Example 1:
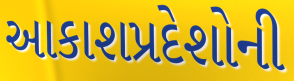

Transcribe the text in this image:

આકાશપ્રદેશોની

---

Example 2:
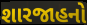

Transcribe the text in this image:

શારજાહનો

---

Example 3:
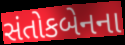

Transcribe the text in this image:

સંતોકબેનના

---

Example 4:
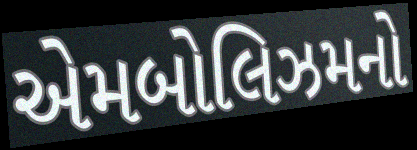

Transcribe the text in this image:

એમબોલિઝમનો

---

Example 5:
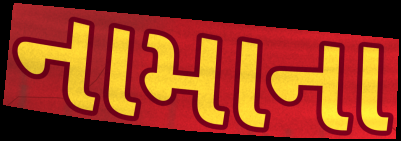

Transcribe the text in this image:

નામાના